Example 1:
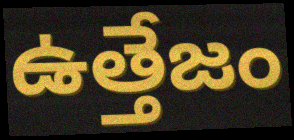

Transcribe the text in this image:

ఉత్తేజం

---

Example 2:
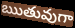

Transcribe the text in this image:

ఋతువుగా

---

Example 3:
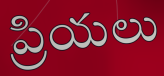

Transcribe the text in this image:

ప్రియలు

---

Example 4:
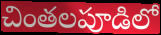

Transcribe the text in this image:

చింతలపూడిలో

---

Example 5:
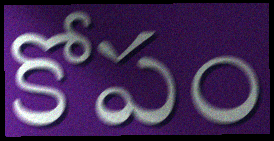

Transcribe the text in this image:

కోపం